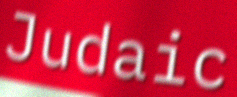
Judaic